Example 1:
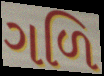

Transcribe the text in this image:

ગળિ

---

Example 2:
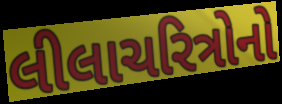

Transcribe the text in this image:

લીલાચરિત્રોનો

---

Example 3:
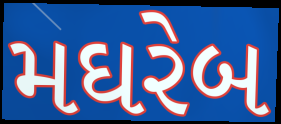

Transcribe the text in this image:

મઘરેબ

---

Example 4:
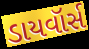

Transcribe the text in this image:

ડાયવૉર્સ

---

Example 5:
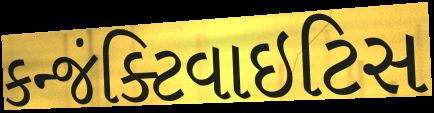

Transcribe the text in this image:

કન્જંક્ટિવાઇટિસ